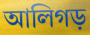
আলিগড়